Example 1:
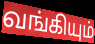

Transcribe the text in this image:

வங்கியும்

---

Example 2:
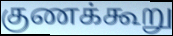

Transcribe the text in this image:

குணக்கூறு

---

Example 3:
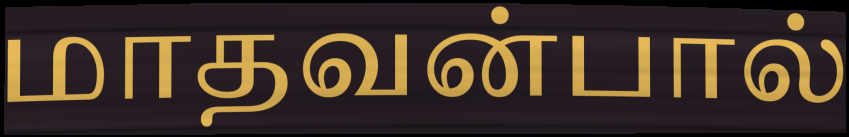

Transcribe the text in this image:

மாதவன்பால்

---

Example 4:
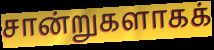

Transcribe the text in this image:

சான்றுகளாகக்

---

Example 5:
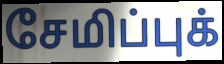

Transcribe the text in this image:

சேமிப்புக்